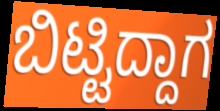
ಬಿಟ್ಟಿದ್ದಾಗ